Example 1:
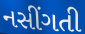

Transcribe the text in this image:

નસીંગતી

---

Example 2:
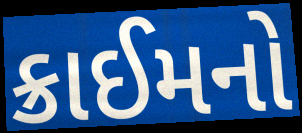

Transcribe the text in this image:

ક્રાઈમનો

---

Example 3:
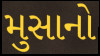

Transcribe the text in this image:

મુસાનો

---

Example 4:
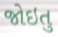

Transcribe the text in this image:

જોઇતુ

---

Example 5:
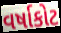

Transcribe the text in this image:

વર્ષાકોટ